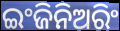
ଇଂଜିନିଅରିଂ